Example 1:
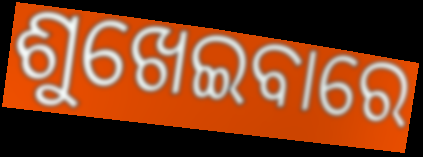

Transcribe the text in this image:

ଶୁଖେଇବାରେ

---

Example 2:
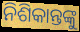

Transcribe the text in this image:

ନିଶିକାନ୍ତଙ୍କୁ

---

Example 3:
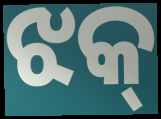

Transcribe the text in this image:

ଝକ୍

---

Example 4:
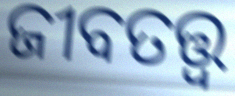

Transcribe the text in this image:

ଜୀବତତ୍ତ୍ୱ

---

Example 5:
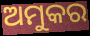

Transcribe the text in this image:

ଅମୁକର